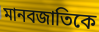
মানবজাতিকে